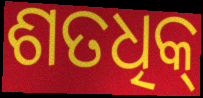
ଶତଧିକ୍